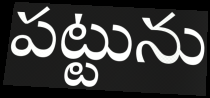
పట్టును